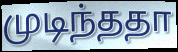
முடிந்ததா